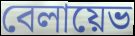
বেলায়েভ